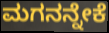
ಮಗನನ್ನೇಕೆ